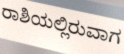
ರಾಶಿಯಲ್ಲಿರುವಾಗ